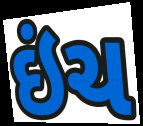
ઇંચ